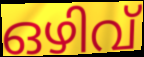
ഒഴിവ്